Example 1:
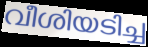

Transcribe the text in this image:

വീശിയടിച്ച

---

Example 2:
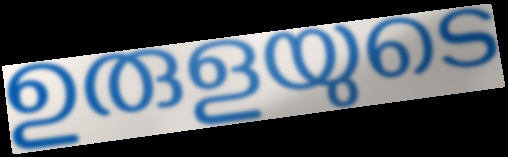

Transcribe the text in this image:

ഉരുളയുടെ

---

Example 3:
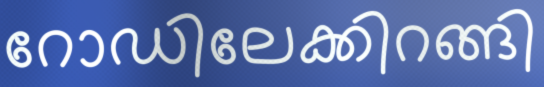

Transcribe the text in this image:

റോഡിലേക്കിറങ്ങി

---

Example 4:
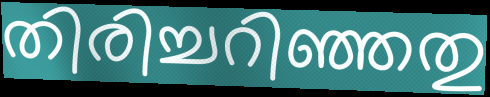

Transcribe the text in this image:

തിരിച്ചറിഞ്ഞതു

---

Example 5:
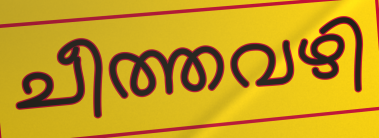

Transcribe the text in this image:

ചീത്തവഴി